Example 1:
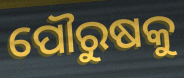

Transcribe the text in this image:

ପୌରୁଷକୁ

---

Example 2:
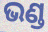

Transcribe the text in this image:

ଭଣ୍ଡ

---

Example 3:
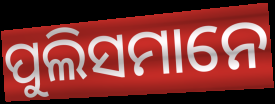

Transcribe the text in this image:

ପୁଲିସମାନେ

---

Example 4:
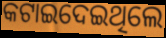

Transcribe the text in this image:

କଟାଇଦେଇଥିଲେ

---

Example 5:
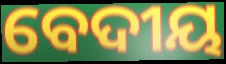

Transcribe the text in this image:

ବେଦୀୟ